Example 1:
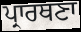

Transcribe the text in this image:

ਪ੍ਰਾਰਥਣਾ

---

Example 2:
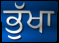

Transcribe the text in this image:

ਭੁੱਖਾ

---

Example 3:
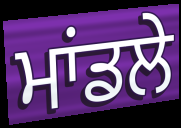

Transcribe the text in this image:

ਮਾਂਡਲੇ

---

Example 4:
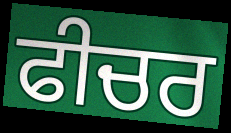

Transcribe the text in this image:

ਫੀਚਰ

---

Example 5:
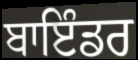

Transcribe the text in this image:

ਬਾਇੰਡਰ